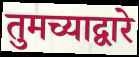
तुमच्याद्वारे